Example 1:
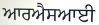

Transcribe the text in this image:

ਆਰਐਸਆਈ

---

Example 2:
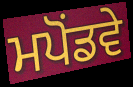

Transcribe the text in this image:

ਮਪੋਂਡਵੇ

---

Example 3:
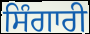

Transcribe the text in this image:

ਸਿੰਗਾਰੀ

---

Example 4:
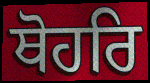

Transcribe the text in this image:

ਥੋਹਰਿ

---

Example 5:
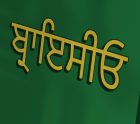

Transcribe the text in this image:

ਬ੍ਰਾਇਸੀਓ